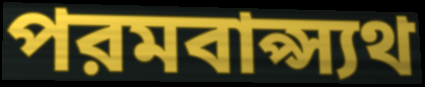
পরমবাপ্স্যথ